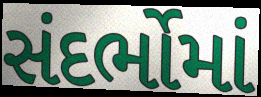
સંદર્ભોમાં